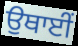
ਉਥਾਈਂ